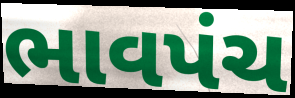
ભાવપંચ